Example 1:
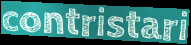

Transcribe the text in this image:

contristari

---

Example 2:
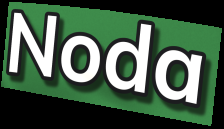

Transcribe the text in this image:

Noda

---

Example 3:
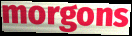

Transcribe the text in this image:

morgons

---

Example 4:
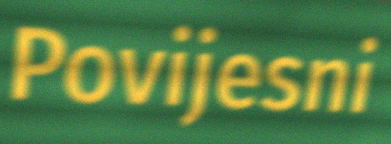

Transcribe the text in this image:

Povijesni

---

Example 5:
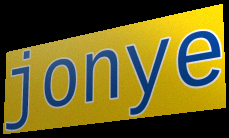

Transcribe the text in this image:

jonye